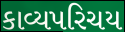
કાવ્યપરિચય